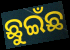
ଛୁଇଁଛ